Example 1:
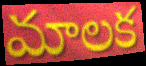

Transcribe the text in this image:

మాలక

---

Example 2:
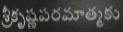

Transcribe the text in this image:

శ్రీకృష్ణపరమాత్మకు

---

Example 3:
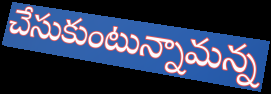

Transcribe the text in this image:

చేసుకుంటున్నామన్న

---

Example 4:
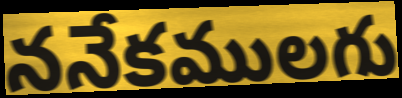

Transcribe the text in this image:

ననేకములగు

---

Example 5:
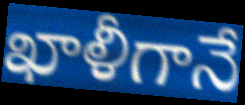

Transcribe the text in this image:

ఖాళీగానే